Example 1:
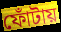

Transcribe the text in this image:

ফোঁটায়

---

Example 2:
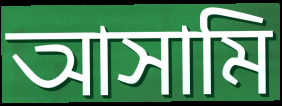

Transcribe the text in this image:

আসামি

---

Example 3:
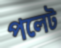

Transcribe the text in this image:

পলেট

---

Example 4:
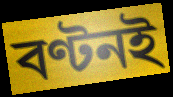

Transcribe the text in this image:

বণ্টনই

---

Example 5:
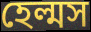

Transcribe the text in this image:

হেল্মস